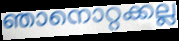
ഞാനൊറ്റക്കല്ല